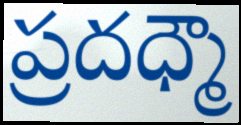
ప్రదధ్మౌ